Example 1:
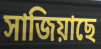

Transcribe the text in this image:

সাজিয়াছে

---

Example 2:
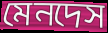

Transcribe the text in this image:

মেনদেস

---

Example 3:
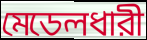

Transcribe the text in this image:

মেডেলধারী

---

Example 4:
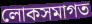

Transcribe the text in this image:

লোকসমাগত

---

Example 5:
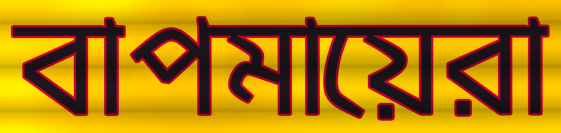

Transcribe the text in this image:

বাপমায়েরা